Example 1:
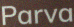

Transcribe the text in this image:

Parva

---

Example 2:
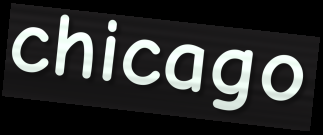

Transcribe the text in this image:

chicago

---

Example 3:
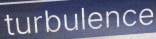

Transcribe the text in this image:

turbulence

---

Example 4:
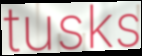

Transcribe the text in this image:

tusks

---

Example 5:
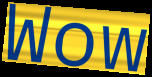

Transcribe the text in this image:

Wow